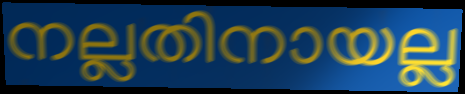
നല്ലതിനായല്ല